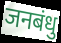
जनबंधु